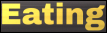
Eating